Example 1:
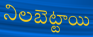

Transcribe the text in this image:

నిలబెట్టాయి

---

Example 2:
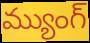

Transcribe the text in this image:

మ్యుంగ్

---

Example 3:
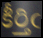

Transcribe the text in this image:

కీర్తిఁ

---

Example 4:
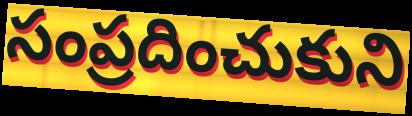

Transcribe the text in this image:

సంప్రదించుకుని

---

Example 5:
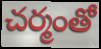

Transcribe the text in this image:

చర్మంతో